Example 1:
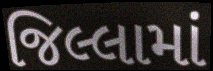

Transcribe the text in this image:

જિલ્લામાં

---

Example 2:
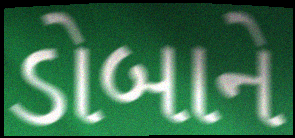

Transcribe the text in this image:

ડોબાને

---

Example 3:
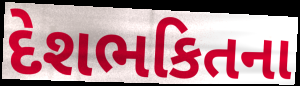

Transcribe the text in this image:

દેશભકિતના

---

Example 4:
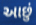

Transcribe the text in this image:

આછું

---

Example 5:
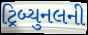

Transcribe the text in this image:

ટ્રિબ્યુનલની